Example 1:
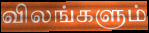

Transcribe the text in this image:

விலங்களும்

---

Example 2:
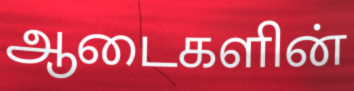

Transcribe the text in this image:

ஆடைகளின்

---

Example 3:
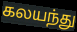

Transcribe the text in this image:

கலயந்து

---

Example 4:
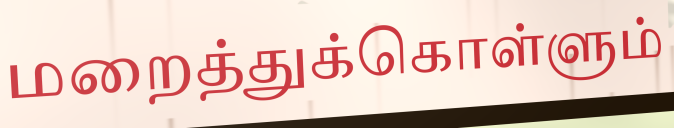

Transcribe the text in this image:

மறைத்துக்கொள்ளும்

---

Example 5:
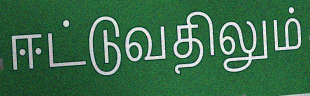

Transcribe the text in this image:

ஈட்டுவதிலும்